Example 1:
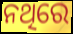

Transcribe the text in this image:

ନଥିରେ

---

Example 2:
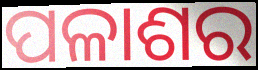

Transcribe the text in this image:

ପଳାଶର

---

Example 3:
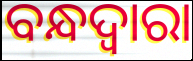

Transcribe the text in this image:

ବନ୍ଧଦ୍ବାରା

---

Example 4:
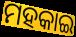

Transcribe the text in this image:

ମହକାଇ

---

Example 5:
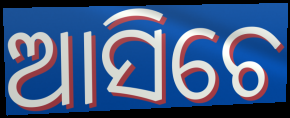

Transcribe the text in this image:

ଆସିଚେ